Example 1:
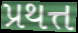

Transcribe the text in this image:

પ્રથત્ત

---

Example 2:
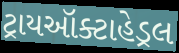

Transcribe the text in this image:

ટ્રાયઑક્ટાહેડ્રલ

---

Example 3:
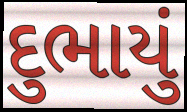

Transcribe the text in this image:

દુભાયું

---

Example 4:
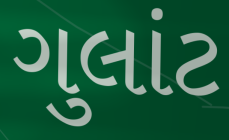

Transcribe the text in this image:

ગુલાંટ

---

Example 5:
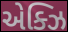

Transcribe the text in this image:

એક્ઝિ